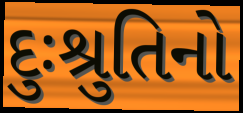
દુઃશ્રુતિનો